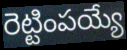
రెట్టింపయ్యే